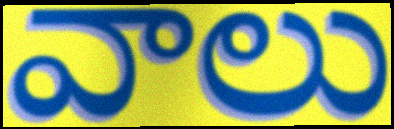
వాలు